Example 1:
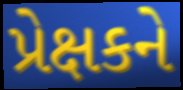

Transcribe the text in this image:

પ્રેક્ષકને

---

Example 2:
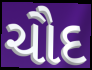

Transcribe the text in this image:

ચૌદ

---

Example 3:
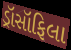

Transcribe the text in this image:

ડ્રૉસૉફિલા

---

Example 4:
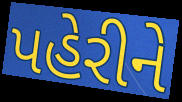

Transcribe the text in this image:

પહેરીને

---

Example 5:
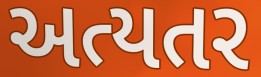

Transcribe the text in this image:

અત્યતર